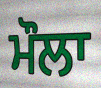
ਮੌਲਾ